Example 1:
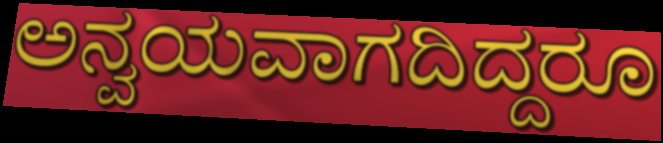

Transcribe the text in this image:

ಅನ್ವಯವಾಗದಿದ್ದರೂ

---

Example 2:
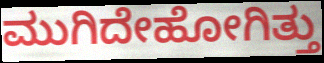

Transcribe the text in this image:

ಮುಗಿದೇಹೋಗಿತ್ತು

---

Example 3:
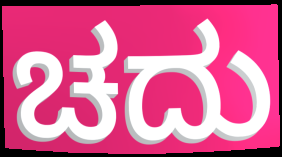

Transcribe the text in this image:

ಚದು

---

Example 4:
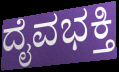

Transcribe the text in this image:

ದೈವಭಕ್ತಿ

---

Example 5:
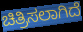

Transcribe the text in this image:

ಚಿತ್ರಿಸಲಾಗಿದೆ